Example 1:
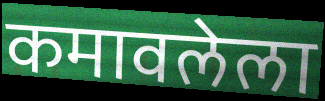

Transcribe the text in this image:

कमावलेला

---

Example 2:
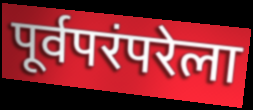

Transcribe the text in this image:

पूर्वपरंपरेला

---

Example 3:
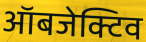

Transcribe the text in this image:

ऑबजेक्टिव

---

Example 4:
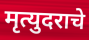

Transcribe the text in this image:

मृत्युदराचे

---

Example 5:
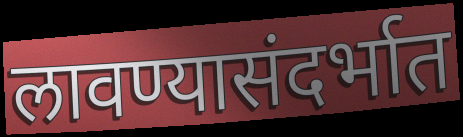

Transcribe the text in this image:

लावण्यासंदर्भात